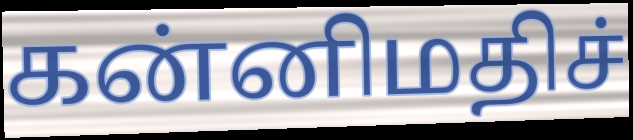
கன்னிமதிச்